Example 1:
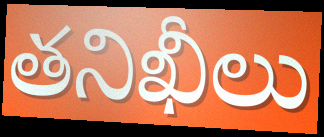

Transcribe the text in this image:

తనిఖీలు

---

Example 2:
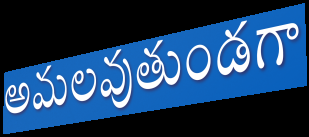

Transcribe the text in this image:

అమలవుతుండగా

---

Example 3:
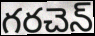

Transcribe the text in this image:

గరచెన్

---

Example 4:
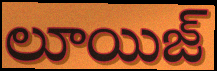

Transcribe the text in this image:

లూయిజ్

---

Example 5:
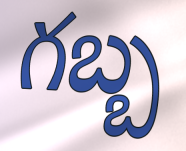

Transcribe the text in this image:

గబ్బ